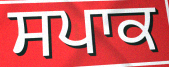
ਸਪਾਕ